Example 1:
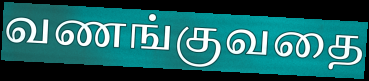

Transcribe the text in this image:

வணங்குவதை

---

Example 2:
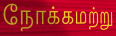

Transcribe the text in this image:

நோக்கமற்று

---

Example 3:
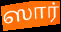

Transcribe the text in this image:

ஸார்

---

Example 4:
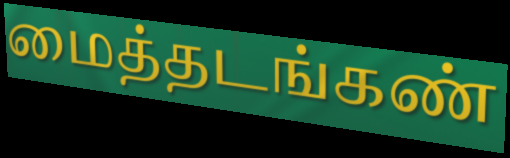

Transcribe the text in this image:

மைத்தடங்கண்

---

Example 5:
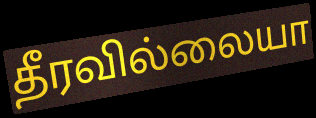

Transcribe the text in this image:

தீரவில்லையா